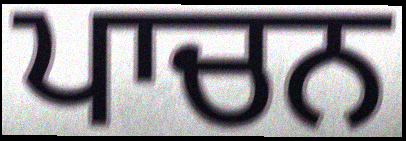
ਪਾਚਨ